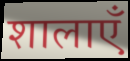
शालाएँ